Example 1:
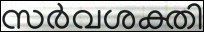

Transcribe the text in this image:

സർവശക്തി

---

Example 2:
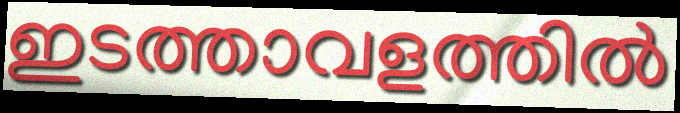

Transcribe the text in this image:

ഇടത്താവളത്തിൽ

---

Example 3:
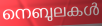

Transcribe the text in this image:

നെബുലകൾ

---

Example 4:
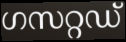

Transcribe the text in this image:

ഗസറ്റഡ്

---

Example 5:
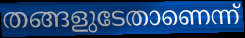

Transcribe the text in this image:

തങ്ങളുടേതാണെന്ന്